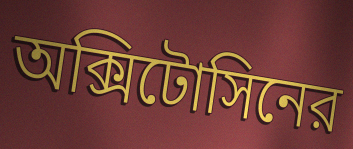
অক্সিটোসিনের